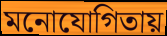
মনোযোগিতায়